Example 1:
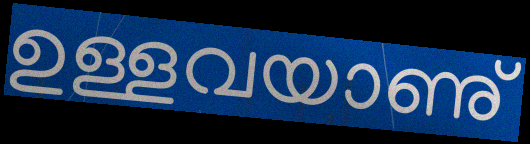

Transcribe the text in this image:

ഉള്ളവയാണു്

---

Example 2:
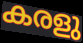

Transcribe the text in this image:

കരളു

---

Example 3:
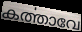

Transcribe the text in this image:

കൎത്താവേ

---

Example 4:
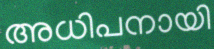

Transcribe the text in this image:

അധിപനായി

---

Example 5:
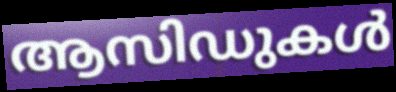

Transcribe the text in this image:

ആസിഡുകൾ